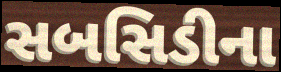
સબસિડીના